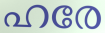
ഹരേ